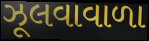
ઝૂલવાવાળા